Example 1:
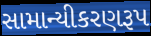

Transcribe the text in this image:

સામાન્યીકરણરૂપ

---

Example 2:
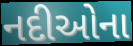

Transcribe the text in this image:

નદીઓના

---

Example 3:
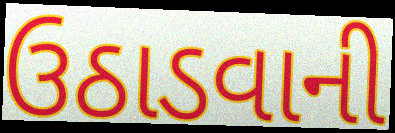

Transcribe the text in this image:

ઉઠાડવાની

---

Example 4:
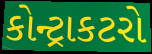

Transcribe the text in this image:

કોન્ટ્રાકટરો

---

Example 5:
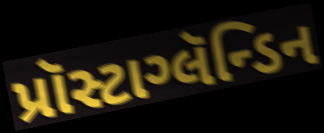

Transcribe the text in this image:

પ્રૉસ્ટાગ્લૅન્ડિન